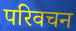
परिवचन